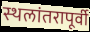
स्थलांतरापूर्वी